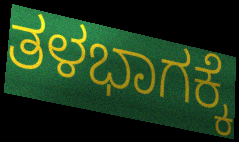
ತಳಭಾಗಕ್ಕೆ